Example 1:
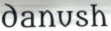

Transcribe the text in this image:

danush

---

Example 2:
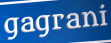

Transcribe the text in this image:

gagrani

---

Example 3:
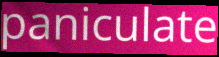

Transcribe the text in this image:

paniculate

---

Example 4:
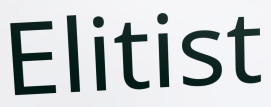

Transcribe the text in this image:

Elitist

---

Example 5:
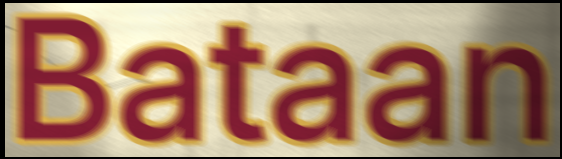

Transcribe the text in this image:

Bataan